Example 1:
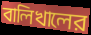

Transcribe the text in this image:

বালিখালের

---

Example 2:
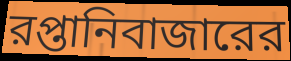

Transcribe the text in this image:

রপ্তানিবাজারের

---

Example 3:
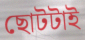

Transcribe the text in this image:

ছোটটাই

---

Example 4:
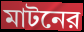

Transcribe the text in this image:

মাটনের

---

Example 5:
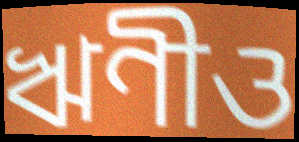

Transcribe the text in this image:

ঋণীও